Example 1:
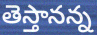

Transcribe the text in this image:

తెస్తానన్న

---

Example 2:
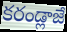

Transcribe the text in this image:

కరండ్లాజే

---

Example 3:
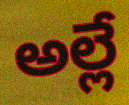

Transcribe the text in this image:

అల్లే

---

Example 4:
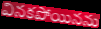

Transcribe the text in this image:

వినకపోయినను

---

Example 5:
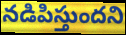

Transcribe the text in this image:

నడిపిస్తుందని